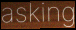
asking